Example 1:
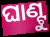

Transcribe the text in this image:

ଘାଣ୍ଟୁ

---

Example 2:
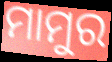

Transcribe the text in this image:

ମାମୁର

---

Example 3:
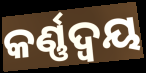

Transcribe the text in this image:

କର୍ଣ୍ଣଦ୍ୱୟ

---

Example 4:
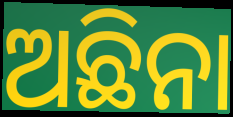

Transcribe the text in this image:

ଅଛିନା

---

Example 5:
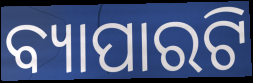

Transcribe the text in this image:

ବ୍ୟାପାରଟି